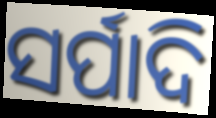
ସର୍ପାଦି